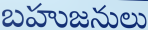
బహుజనులు